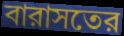
বারাসতের